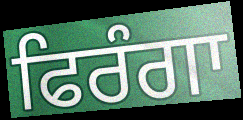
ਫਿਰੰਗਾ